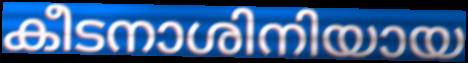
കീടനാശിനിയായ